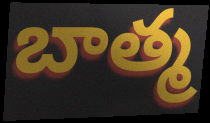
బాత్మ